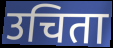
उचिता